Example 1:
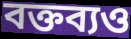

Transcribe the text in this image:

বক্তব্যও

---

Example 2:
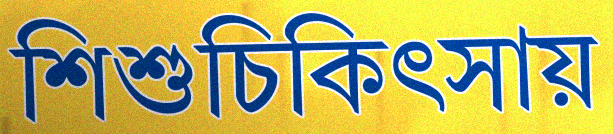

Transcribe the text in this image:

শিশুচিকিৎসায়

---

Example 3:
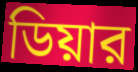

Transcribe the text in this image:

ডিয়ার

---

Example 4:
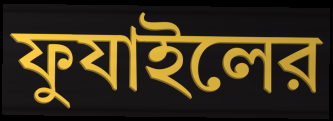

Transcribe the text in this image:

ফুযাইলের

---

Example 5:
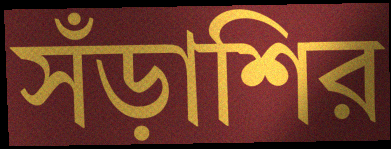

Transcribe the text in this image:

সঁড়াশির